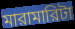
মারামারিটা